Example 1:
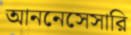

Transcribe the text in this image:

আননেসেসারি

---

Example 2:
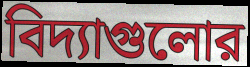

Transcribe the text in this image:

বিদ্যাগুলোর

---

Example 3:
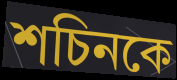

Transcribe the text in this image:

শচিনকে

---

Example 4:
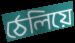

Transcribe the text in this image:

ঠেলিয়ে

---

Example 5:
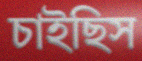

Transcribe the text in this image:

চাইছিস